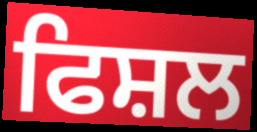
ਫਿਸ਼ਲ